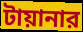
টায়ানার